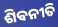
ଶିଵନୀତି